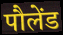
पौलेंड